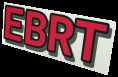
EBRT